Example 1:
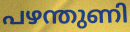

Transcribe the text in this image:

പഴന്തുണി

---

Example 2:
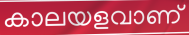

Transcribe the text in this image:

കാലയളവാണ്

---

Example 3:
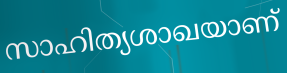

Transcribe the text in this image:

സാഹിത്യശാഖയാണ്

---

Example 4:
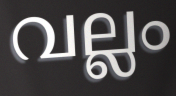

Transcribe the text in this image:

വല്ലം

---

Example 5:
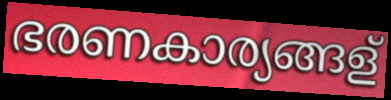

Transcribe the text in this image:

ഭരണകാര്യങ്ങള്